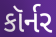
કૉર્નર